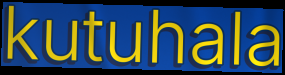
kutuhala